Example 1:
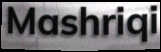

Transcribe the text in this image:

Mashriqi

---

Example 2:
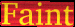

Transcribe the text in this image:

Faint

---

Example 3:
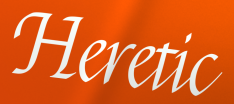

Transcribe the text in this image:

Heretic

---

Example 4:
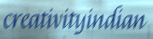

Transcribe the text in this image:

creativityindian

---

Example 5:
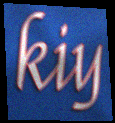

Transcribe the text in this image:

kiy